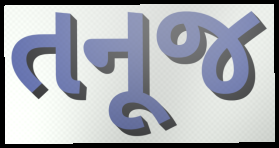
તનૂજ